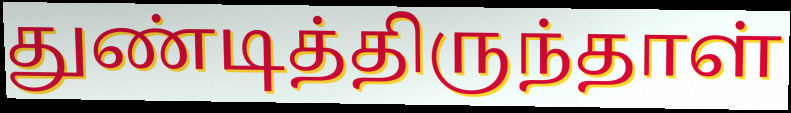
துண்டித்திருந்தாள்